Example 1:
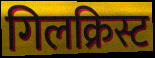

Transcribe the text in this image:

गिलक्रिस्ट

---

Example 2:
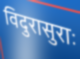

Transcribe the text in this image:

विदुरासुराः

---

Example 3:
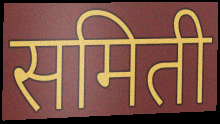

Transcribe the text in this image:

समिती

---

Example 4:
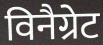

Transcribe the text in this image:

विनैग्रेट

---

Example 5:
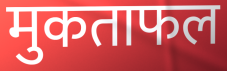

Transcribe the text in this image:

मुकताफल